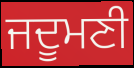
ਜਦੂਮਣੀ